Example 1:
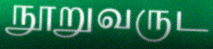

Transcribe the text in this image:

நூறுவருட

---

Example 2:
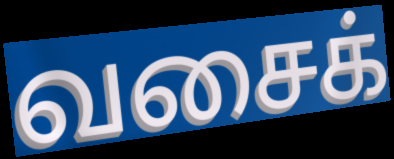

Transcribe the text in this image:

வசைக்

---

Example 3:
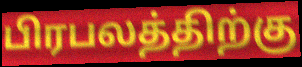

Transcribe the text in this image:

பிரபலத்திற்கு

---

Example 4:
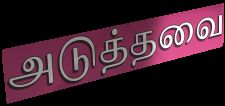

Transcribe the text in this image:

அடுத்தவை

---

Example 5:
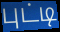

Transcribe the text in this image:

புட்டி